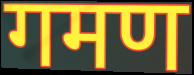
गमण